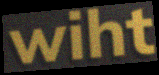
wiht